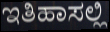
ಇತಿಹಾಸಲ್ಲಿ